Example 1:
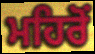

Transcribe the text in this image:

ਮਹਿਰੋਂ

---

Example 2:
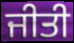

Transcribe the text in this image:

ਜੀਤੀ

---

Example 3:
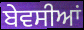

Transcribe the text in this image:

ਬੇਵਸੀਆਂ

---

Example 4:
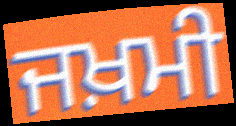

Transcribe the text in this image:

ਜਖ਼ਮੀ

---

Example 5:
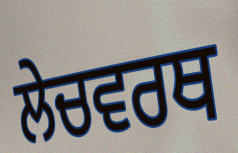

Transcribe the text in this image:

ਲੇਚਵਰਥ